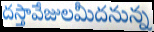
దస్తావేజులమీదనున్న